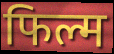
फिल्म